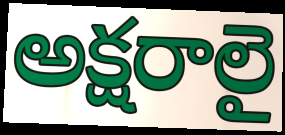
అక్షరాలై